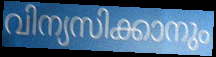
വിന്യസിക്കാനും